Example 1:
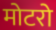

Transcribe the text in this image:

मोटरो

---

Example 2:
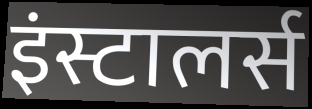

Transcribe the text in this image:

इंस्टालर्स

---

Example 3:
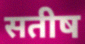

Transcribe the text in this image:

सतीष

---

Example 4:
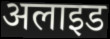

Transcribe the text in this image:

अलाइड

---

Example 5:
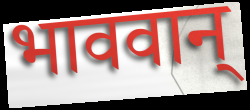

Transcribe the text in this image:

भाववान्